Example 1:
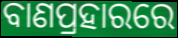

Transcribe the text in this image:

ବାଣପ୍ରହାରରେ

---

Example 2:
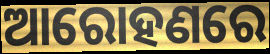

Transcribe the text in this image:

ଆରୋହଣରେ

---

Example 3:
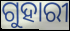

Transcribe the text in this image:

ଗୁହାରୀ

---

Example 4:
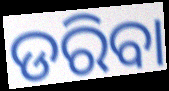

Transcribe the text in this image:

ଡରିବା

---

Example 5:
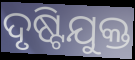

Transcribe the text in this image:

ଦୃଷ୍ଟିଯୁକ୍ତ